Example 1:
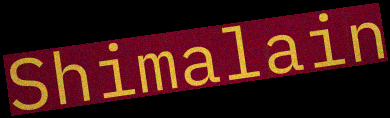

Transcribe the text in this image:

Shimalain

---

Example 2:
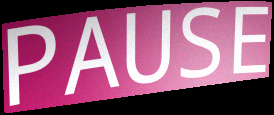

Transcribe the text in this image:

PAUSE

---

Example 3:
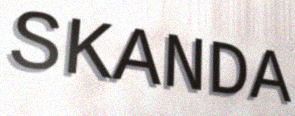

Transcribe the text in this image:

SKANDA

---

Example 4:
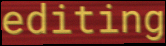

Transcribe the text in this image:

editing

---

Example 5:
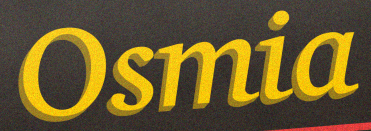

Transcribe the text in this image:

Osmia